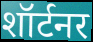
शॉर्टनर